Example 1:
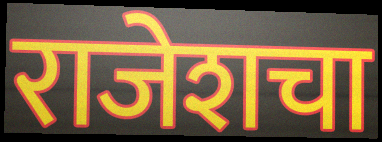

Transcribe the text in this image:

राजेशचा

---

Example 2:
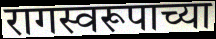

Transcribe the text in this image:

रागस्वरूपाच्या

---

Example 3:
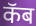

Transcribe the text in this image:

कॅब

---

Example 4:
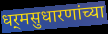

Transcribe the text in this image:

धर्मसुधारणांच्या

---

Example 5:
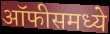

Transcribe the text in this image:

ऑफीसमध्ये